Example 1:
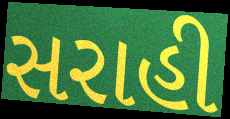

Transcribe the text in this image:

સરાહી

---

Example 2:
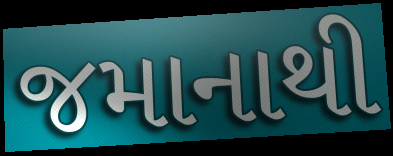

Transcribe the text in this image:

જમાનાથી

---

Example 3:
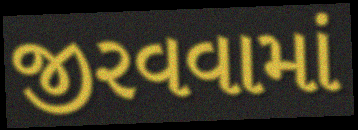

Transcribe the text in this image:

જીરવવામાં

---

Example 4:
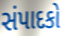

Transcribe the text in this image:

સંપાદકો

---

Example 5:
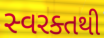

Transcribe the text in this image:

સ્વરક્તથી